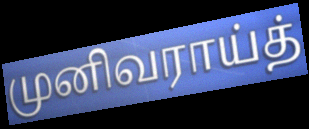
முனிவராய்த்